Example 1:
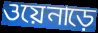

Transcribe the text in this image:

ওয়েনাড়ে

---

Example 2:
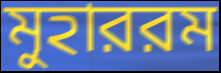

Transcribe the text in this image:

মুহাররম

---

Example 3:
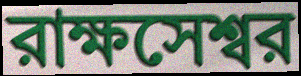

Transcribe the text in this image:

রাক্ষসেশ্বর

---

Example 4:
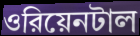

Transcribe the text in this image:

ওরিয়েনটাল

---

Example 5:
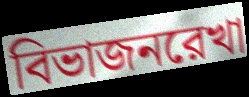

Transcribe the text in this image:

বিভাজনরেখা